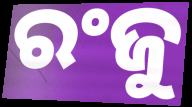
ରଂଜୁ